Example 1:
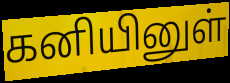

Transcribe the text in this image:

கனியினுள்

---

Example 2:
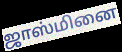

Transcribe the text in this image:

ஜாஸ்மினை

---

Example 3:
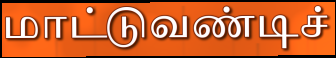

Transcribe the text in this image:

மாட்டுவண்டிச்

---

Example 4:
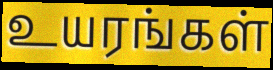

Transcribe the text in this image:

உயரங்கள்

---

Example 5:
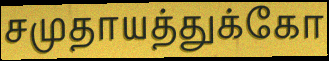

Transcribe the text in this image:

சமுதாயத்துக்கோ